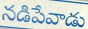
నడిపేవాడు